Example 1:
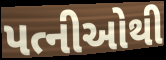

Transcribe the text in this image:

પત્નીઓથી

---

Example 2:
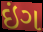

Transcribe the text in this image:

ઇંગ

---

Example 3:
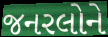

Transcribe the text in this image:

જનરલોને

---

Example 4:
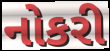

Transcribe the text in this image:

નોકરી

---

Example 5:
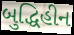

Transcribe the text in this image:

બુદ્ધિહીન